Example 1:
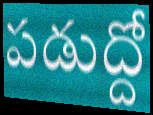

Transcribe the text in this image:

పడుద్దో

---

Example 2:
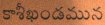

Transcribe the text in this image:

కాశీఖండమున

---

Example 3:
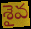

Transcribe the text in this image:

శైవ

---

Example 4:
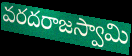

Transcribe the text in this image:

వరదరాజస్వామి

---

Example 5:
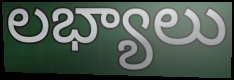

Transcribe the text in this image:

లభ్యాలు